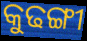
କୁଢଙ୍ଗୀ